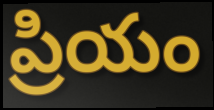
ప్రియం